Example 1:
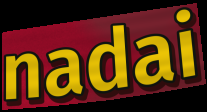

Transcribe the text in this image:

nadai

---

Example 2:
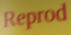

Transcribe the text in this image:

Reprod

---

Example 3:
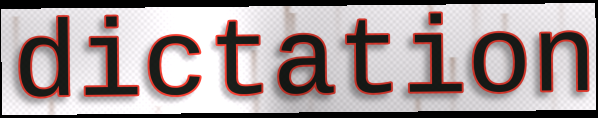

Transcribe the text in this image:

dictation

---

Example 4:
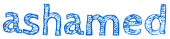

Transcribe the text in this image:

ashamed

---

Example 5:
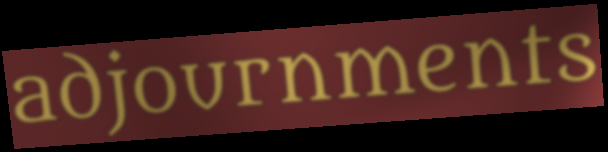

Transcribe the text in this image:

adjournments